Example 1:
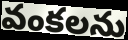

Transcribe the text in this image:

వంకలను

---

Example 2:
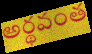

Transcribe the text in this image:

అర్థవంత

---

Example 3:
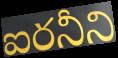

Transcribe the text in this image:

ఐరనీని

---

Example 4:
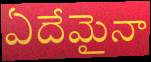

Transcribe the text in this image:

ఏదేమైనా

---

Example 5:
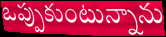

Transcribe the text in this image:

ఒప్పుకుంటున్నాను